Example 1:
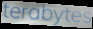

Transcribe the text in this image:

terabytes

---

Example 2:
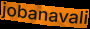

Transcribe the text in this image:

jobanavali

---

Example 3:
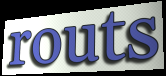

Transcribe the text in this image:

routs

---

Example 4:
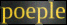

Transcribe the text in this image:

poeple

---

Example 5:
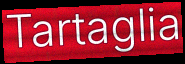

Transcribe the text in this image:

Tartaglia